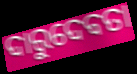
ଦାରୁଦେବତା